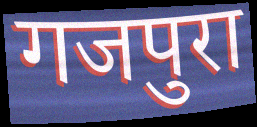
गजपुरा